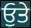
ਓੁਤੇ